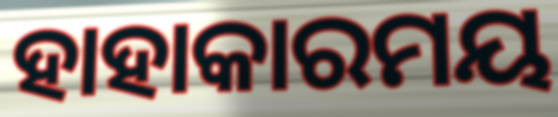
ହାହାକାରମୟ